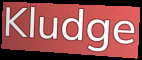
Kludge